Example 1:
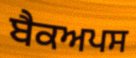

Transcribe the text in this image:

ਬੈਕਅਪਸ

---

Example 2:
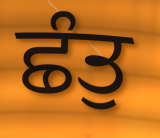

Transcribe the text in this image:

ਛੰਤੁ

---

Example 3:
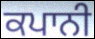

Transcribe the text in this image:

ਕਪਾਨੀ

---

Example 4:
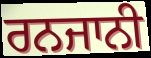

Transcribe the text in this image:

ਰਨਜਾਨੀ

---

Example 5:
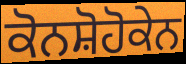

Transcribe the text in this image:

ਕੋਨਸ਼ੋਹੋਕੇਨ